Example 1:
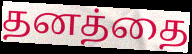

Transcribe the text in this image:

தனத்தை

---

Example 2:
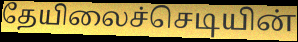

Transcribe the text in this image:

தேயிலைச்செடியின்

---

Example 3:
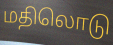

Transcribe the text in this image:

மதிலொடு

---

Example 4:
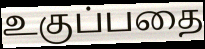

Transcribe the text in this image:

உகுப்பதை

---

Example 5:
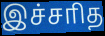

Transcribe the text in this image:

இச்சரித